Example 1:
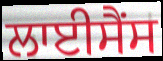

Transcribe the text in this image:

ਲਾਈਸੈਂਸ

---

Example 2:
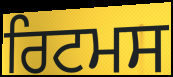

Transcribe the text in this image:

ਰਿਟਮਸ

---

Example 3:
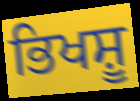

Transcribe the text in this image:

ਭਿਖਸ਼ੂ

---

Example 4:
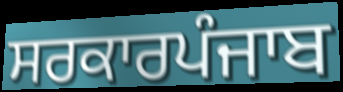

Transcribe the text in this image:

ਸਰਕਾਰਪੰਜਾਬ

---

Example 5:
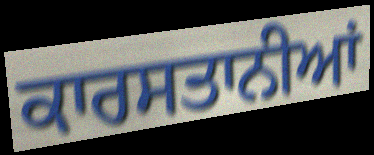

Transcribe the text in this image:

ਕਾਰਸਤਾਨੀਆਂ